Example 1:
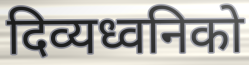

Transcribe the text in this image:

दिव्यध्वनिको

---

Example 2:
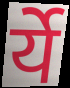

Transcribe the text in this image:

र्ये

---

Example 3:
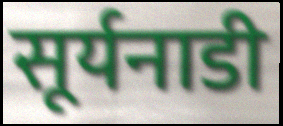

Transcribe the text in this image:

सूर्यनाडी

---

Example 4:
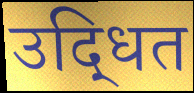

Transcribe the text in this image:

उद्धित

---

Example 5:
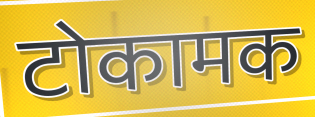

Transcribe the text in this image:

टोकामक